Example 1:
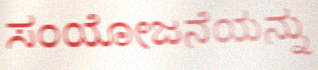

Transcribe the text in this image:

ಸಂಯೋಜನೆಯನ್ನು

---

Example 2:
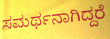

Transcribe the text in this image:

ಸಮರ್ಥನಾಗಿದ್ದರೆ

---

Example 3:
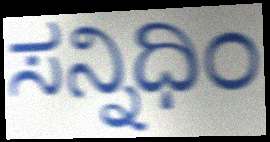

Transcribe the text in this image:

ಸನ್ನಿಧಿಂ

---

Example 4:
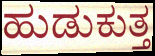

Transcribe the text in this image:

ಹುಡುಕುತ್ತ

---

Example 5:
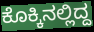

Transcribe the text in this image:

ಕೊಕ್ಕಿನಲ್ಲಿದ್ದ